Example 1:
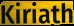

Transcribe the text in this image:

Kiriath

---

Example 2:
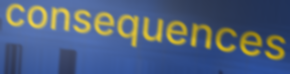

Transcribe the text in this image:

consequences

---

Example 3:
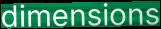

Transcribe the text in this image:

dimensions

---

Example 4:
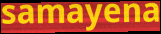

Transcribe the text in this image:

samayena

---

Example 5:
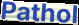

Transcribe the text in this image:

Pathol